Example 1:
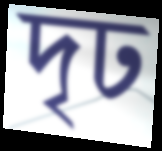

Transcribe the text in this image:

দৃঢ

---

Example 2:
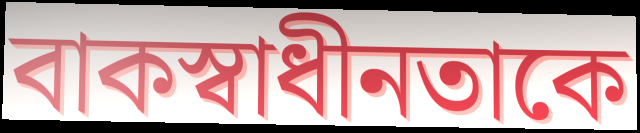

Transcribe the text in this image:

বাকস্বাধীনতাকে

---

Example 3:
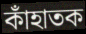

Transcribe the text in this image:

কাঁহাতক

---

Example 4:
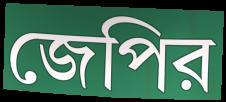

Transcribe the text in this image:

জেপির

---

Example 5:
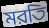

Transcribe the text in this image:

মরতি